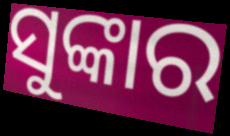
ସୁଙ୍କାର